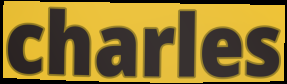
charles